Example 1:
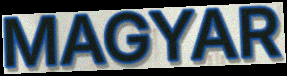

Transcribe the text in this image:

MAGYAR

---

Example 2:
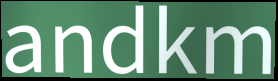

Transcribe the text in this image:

andkm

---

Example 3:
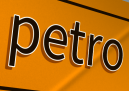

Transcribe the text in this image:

petro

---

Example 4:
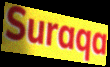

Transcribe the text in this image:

Suraqa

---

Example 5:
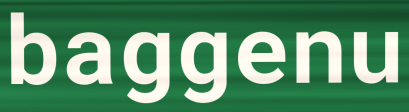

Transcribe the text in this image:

baggenu